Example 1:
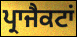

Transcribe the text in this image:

ਪ੍ਰਾਜੈਕਟਾਂ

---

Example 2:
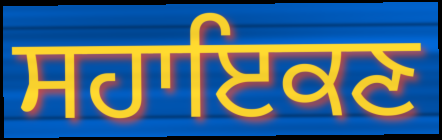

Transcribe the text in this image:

ਸਹਾਇਕਣ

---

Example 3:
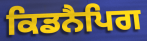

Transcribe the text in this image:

ਕਿਡਨੈਪਿਗ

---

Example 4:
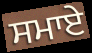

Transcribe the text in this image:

ਸਮਾਏ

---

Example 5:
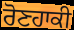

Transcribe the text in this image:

ਰੋਣਹਾਕੀ